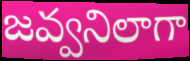
జవ్వనిలాగా